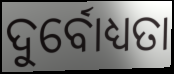
ଦୁର୍ବୋଧ୍ୟତା